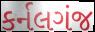
કર્નલગંજ